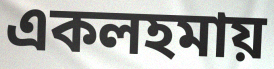
একলহমায়